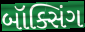
બૉક્સિંગ